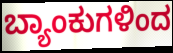
ಬ್ಯಾಂಕುಗಳಿಂದ